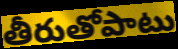
తీరుతోపాటు